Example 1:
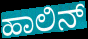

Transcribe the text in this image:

ಹಾಲಿನ್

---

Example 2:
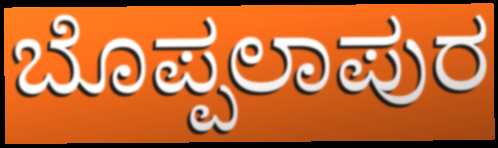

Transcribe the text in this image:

ಬೊಪ್ಪಲಾಪುರ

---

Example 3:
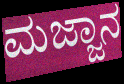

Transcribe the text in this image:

ಮಜ್ಜಾನ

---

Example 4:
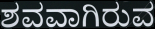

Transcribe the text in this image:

ಶವವಾಗಿರುವ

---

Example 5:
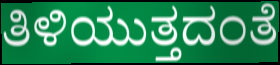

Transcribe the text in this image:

ತಿಳಿಯುತ್ತದಂತೆ